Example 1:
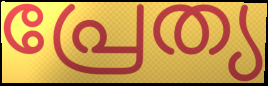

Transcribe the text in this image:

പ്രേത്യ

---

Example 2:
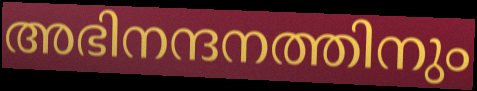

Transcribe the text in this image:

അഭിനന്ദനത്തിനും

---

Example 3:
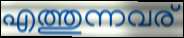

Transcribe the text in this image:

എത്തുന്നവര്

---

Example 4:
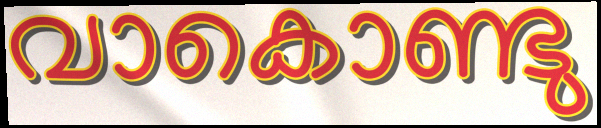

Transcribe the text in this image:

വാകൊണ്ടു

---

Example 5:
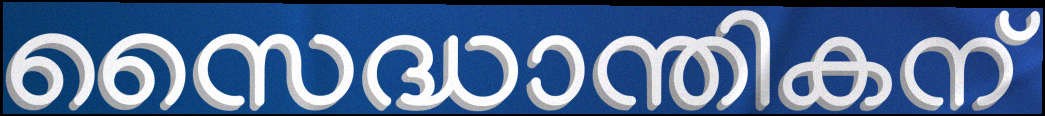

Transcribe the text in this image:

സൈദ്ധാന്തികന്